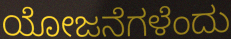
ಯೋಜನೆಗಳೆಂದು